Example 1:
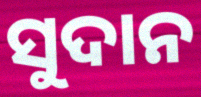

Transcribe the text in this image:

ସୁଦାନ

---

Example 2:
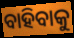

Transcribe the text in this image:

ବାହିବାକୁ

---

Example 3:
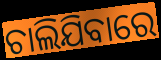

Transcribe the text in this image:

ଚାଲିଯିବାରେ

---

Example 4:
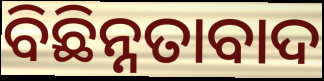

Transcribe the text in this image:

ବିଛିନ୍ନତାବାଦ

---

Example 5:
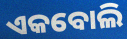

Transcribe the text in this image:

ଏକବୋଲି